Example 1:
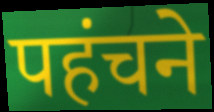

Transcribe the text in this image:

पहंचने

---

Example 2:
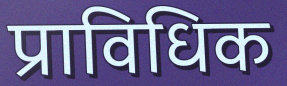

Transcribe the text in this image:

प्राविधिक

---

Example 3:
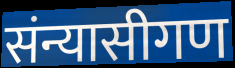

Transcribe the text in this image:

संन्यासीगण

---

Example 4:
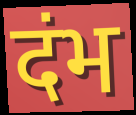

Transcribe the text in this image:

दंभ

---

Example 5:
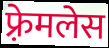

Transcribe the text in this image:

फ़्रेमलेस